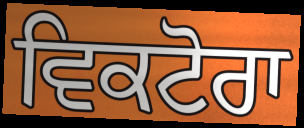
ਵਿਕਟੋਰਾ